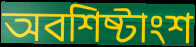
অবশিষ্টাংশ